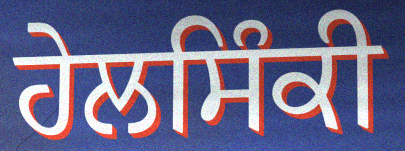
ਹੇਲਸਿੰਕੀ